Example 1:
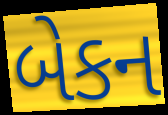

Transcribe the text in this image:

બેકન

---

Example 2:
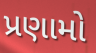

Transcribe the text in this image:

પ્રણામો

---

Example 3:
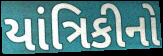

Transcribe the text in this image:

યાંત્રિકીનો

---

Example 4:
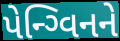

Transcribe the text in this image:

પેન્ગ્વિનને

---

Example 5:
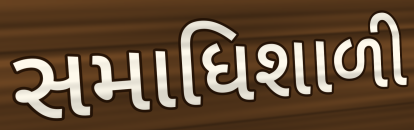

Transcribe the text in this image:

સમાધિશાળી